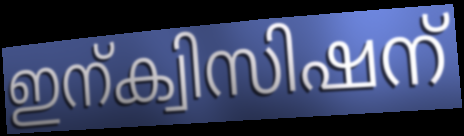
ഇന്ക്വിസിഷന്